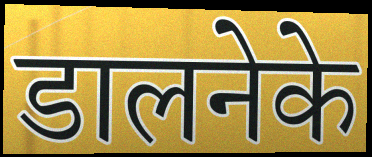
डालनेके